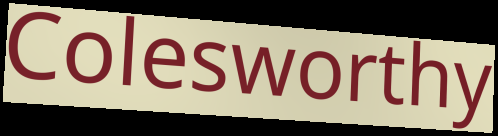
Colesworthy